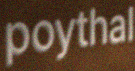
poythal